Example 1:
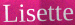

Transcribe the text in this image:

Lisette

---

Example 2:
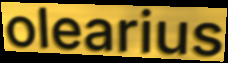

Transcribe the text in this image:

olearius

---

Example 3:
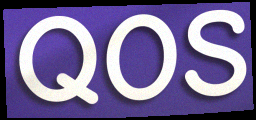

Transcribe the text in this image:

QOS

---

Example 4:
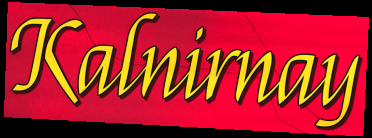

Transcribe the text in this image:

Kalnirnay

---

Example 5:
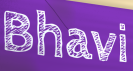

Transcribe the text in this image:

Bhavi